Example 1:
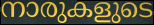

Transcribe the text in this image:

നാരുകളുടെ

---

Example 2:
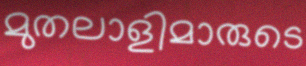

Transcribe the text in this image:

മുതലാളിമാരുടെ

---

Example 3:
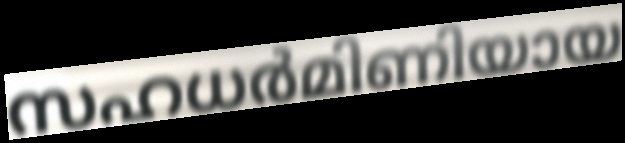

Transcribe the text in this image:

സഹധർമിണിയായ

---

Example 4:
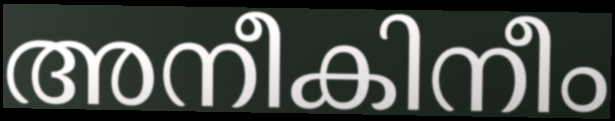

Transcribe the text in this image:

അനീകിനീം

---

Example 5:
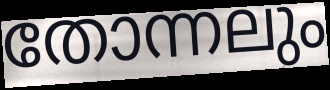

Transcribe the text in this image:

തോന്നലും